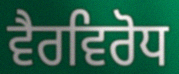
ਵੈਰਵਿਰੋਧ